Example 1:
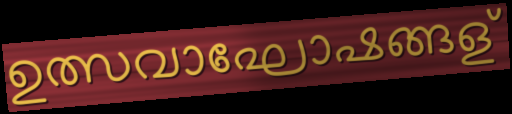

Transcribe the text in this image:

ഉത്സവാഘോഷങ്ങള്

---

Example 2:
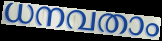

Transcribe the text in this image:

ധനവതാം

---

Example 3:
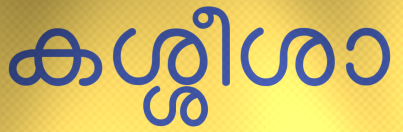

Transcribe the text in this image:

കശ്ശീശാ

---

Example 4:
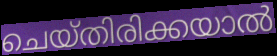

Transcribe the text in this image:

ചെയ്തിരിക്കയാൽ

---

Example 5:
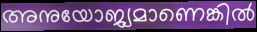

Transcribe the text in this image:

അനുയോജ്യമാണെങ്കിൽ